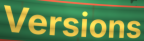
Versions